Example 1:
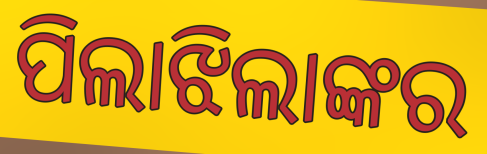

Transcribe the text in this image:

ପିଲାଝିଲାଙ୍କର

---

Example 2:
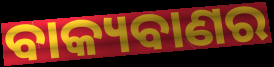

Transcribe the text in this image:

ବାକ୍ୟବାଣର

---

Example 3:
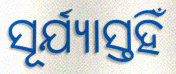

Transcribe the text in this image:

ସୂର୍ଯ୍ୟାସ୍ତହିଁ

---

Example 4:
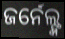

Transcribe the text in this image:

ଜର୍ନେଲ୍ଙ୍କ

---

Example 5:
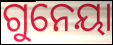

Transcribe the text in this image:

ଗୁନେୟା